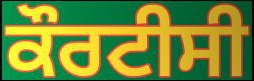
ਕੌਰਟੀਸੀ